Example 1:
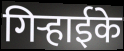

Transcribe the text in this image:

गिर्‍हाईके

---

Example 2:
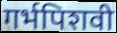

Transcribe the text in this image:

गर्भपिशवी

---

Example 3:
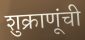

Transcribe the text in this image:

शुक्राणूंची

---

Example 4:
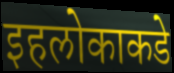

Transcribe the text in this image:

इहलोकाकडे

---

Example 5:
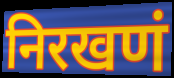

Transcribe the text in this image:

निरखणं